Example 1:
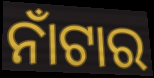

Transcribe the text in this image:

ନାଁଟାର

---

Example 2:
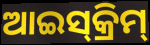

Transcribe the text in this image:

ଆଇସ୍‍କ୍ରିମ୍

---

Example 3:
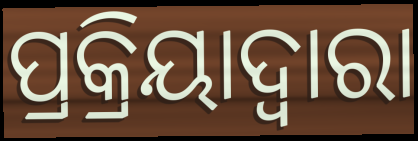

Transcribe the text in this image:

ପ୍ରକ୍ରିୟାଦ୍ଵାରା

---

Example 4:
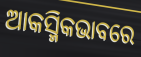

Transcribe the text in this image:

ଆକସ୍ମିକଭାବରେ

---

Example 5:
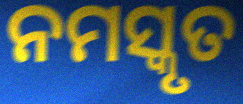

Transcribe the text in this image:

ନମସ୍କୃତ